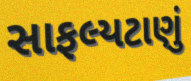
સાફલ્યટાણું